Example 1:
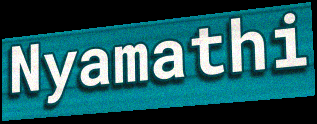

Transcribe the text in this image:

Nyamathi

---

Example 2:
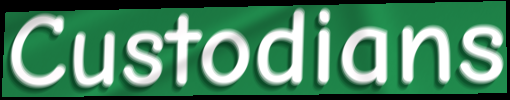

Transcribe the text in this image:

Custodians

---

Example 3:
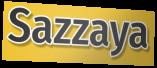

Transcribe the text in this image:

Sazzaya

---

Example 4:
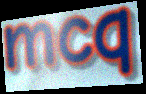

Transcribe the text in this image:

mcq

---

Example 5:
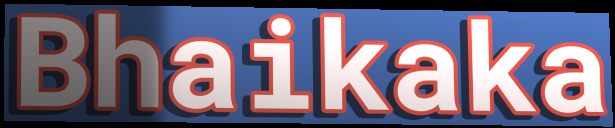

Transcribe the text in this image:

Bhaikaka